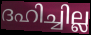
ദഹിച്ചില്ല